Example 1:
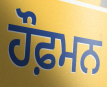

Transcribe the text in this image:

ਹੌਫ਼ਮਨ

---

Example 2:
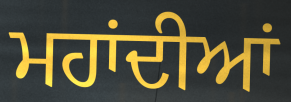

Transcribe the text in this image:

ਮਹਾਂਦੀਆਂ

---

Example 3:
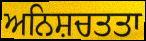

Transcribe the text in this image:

ਅਨਿਸ਼ਚਤਤਾ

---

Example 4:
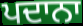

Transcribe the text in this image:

ਪਦਾਨਾ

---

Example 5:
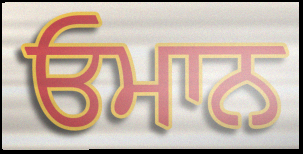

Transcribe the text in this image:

ਓਮਾਨ